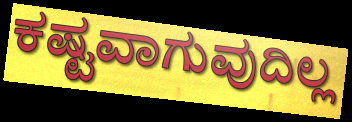
ಕಷ್ಟವಾಗುವುದಿಲ್ಲ